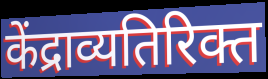
केंद्राव्यतिरिक्त